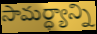
సామర్ధ్యాన్ని